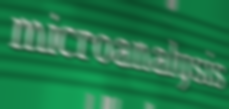
microanalysis